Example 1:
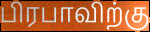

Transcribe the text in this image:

பிரபாவிற்கு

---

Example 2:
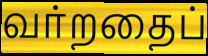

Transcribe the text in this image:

வர்றதைப்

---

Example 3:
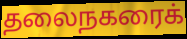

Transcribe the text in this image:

தலைநகரைக்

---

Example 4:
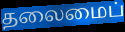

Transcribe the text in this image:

தலைமைப்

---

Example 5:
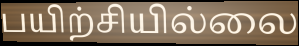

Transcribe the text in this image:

பயிற்சியில்லை